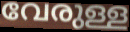
വേരുള്ള